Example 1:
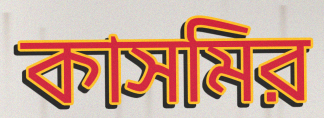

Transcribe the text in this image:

কাসমির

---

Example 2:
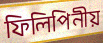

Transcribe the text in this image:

ফিলিপিনীয়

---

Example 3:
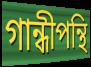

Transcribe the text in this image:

গান্ধীপন্থি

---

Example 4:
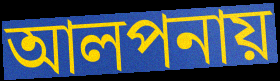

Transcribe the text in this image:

আলপনায়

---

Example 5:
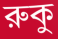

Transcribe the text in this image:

রুকু